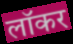
लॉकर